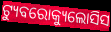
ଟ୍ୟୁବରୋକ୍ୟୁଲୋସିସ